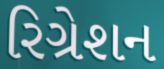
રિગ્રેશન